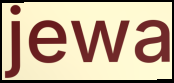
jewa